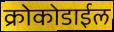
क्रोकोडाईल